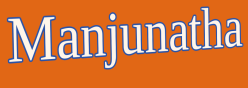
Manjunatha